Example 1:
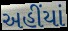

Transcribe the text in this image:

અહીંયાં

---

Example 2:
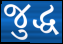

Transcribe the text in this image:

જુદ્ધ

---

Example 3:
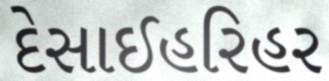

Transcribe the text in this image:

દેસાઈહરિહર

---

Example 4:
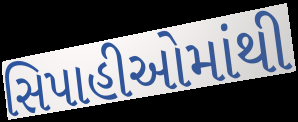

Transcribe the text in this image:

સિપાહીઓમાંથી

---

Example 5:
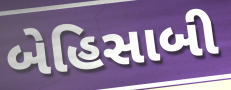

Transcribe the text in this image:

બેહિસાબી